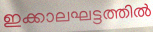
ഇക്കാലഘട്ടത്തിൽ